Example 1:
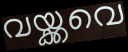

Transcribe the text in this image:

വയ്ക്കവെ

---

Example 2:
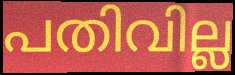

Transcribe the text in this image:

പതിവില്ല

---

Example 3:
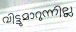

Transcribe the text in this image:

വിട്ടുമാറുന്നില്ല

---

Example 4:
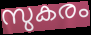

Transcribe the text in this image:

സുകരം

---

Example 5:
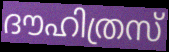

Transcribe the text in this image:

ദൗഹിത്രസ്